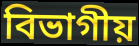
বিভাগীয়